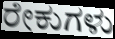
ರೇಕುಗಳು